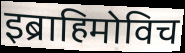
इब्राहिमोविच